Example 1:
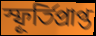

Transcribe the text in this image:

স্ফূর্তিপ্রাপ্ত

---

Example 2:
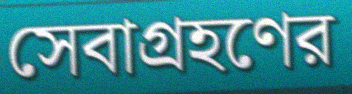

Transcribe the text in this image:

সেবাগ্রহণের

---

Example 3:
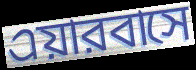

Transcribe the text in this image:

এয়ারবাসে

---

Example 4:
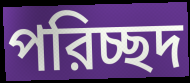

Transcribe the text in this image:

পরিচ্ছদ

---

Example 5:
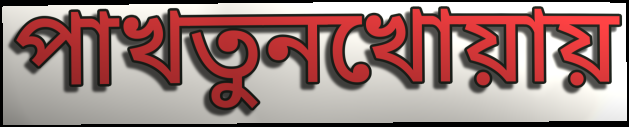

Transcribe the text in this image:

পাখতুনখোয়ায়